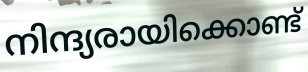
നിന്ദ്യരായിക്കൊണ്ട്